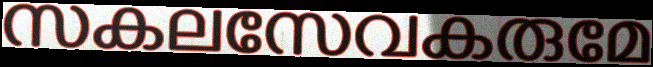
സകലസേവകരുമേ